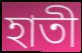
হাতী